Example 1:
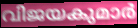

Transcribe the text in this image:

വിജയകുമാർ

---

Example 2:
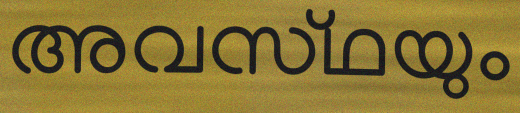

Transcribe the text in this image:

അവസ്‌ഥയും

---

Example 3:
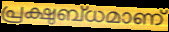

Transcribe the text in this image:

പ്രക്ഷുബ്ധമാണ്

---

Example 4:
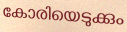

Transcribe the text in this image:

കോരിയെടുക്കും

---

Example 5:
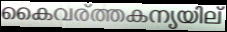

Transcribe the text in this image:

കൈവര്ത്തകന്യയില്